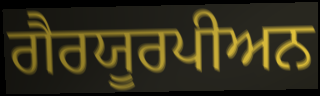
ਗੈਰਯੂਰਪੀਅਨ